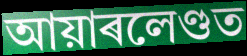
আয়াৰলেণ্ডত